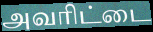
அவரிட்டை